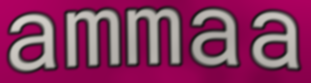
ammaa